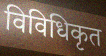
विविधिकृत